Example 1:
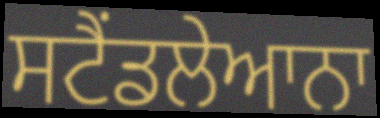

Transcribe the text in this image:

ਸਟੈਂਡਲੇਆਨਾ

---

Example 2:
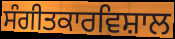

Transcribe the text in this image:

ਸੰਗੀਤਕਾਰਵਿਸ਼ਾਲ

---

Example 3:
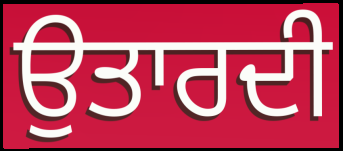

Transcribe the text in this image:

ਉਤਾਰਦੀ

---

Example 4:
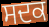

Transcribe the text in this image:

ਸਦਕ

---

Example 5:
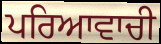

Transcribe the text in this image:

ਪਰਿਆਵਾਚੀ